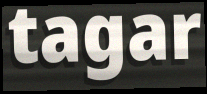
tagar